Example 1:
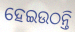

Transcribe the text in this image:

ହେଇଉଠନ୍ତି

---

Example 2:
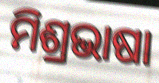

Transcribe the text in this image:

ମିଶ୍ରଭାଷା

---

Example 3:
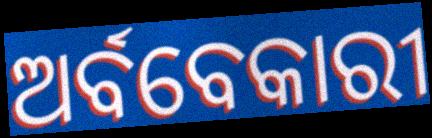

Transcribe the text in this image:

ଅର୍ବବେକାରୀ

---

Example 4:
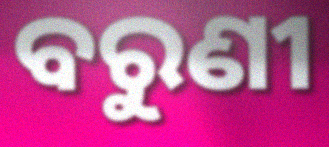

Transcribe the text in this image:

ବରୁଣୀ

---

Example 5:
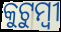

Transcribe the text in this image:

କୁଟୁମ୍ୱୀ